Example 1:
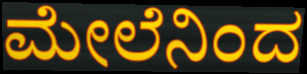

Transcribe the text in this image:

ಮೇಲೆನಿಂದ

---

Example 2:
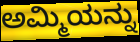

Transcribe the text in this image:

ಅಮ್ಮಿಯನ್ನು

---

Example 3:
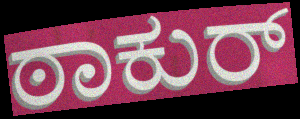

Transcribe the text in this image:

ಠಾಕುರ್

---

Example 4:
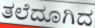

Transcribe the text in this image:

ತಲೆದೂಗಿದ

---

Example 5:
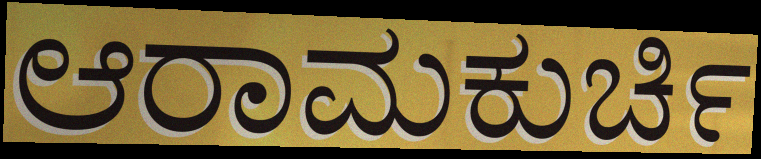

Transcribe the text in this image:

ಆರಾಮಕುರ್ಚಿ